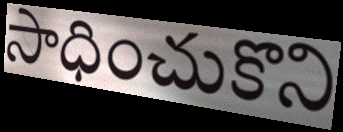
సాధించుకొని